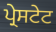
ਪ੍ਰੇਸਟੇਟ